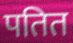
पतित